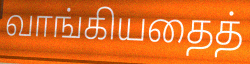
வாங்கியதைத்